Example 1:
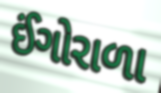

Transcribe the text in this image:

ઈંગોરાળા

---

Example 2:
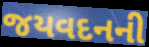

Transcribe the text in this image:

જયવદનની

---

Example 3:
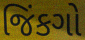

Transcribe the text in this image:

જિંકગો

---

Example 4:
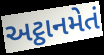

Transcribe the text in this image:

અટ્ઠાનમેતં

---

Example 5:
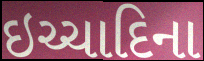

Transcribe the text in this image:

ઇચ્ચાદિના